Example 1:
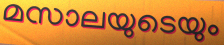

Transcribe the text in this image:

മസാലയുടെയും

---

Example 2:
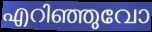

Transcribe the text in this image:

എറിഞ്ഞുവോ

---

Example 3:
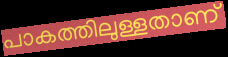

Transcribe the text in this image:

പാകത്തിലുള്ളതാണ്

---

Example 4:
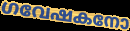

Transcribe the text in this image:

ഗവേഷകനോ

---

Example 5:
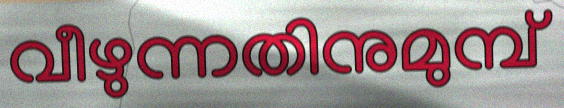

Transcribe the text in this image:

വീഴുന്നതിനുമുമ്പ്